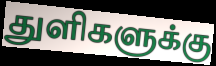
துளிகளுக்கு